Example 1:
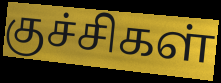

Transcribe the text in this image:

குச்சிகள்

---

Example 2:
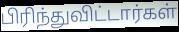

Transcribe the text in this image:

பிரிந்துவிட்டார்கள்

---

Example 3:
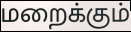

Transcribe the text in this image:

மறைக்கும்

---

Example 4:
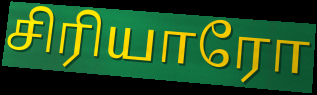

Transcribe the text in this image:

சிரியாரோ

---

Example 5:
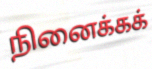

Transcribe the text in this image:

நினைக்கக்